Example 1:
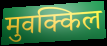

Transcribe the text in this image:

मुवक्किल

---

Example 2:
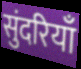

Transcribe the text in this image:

सुंदरियाँ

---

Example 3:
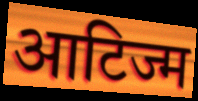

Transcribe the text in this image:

आटिज्म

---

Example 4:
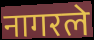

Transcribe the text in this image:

नागरले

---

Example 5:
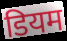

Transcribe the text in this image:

डियम